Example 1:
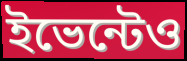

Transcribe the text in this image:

ইভেন্টেও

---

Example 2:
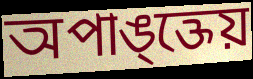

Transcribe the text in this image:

অপাঙ্‌ক্তেয়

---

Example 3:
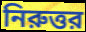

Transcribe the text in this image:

নিরুত্তর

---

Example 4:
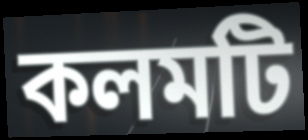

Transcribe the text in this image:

কলমটি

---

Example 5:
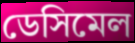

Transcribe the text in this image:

ডেসিমেল